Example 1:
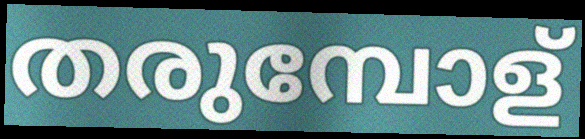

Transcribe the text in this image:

തരുമ്പോള്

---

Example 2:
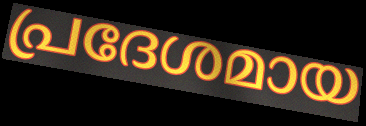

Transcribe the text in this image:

പ്രദേശമായ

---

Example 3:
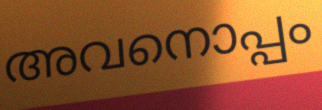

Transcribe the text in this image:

അവനൊപ്പം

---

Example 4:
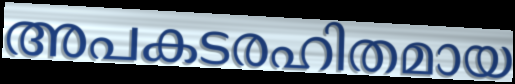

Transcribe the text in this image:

അപകടരഹിതമായ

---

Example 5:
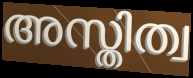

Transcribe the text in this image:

അസ്തിത്വ